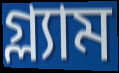
গ্ল্যাম